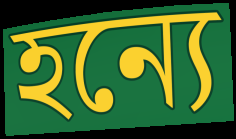
হন্যে